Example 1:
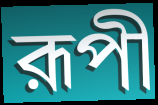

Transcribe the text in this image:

রূপী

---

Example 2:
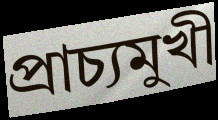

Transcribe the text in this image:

প্রাচ্যমুখী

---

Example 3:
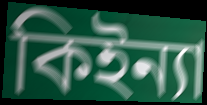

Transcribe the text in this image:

কিইন্যা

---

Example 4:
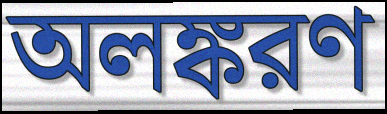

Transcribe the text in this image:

অলঙ্করণ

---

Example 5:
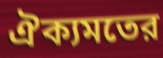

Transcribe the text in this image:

ঐক্যমতের